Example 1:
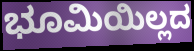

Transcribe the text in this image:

ಭೂಮಿಯಿಲ್ಲದ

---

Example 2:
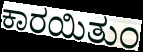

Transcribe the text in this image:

ಕಾರಯಿತುಂ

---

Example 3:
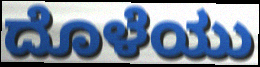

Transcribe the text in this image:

ದೊಳೆಯು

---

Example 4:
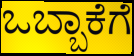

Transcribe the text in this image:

ಒಬ್ಬಾಕೆಗೆ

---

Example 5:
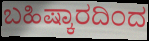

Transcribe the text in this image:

ಬಹಿಷ್ಕಾರದಿಂದ